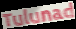
Tulunad